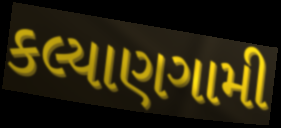
કલ્યાણગામી